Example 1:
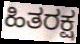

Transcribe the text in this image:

ಹಿತರಕ್ಷ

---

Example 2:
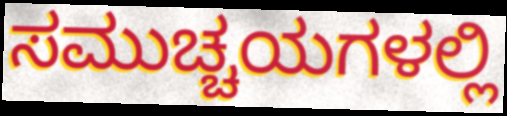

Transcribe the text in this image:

ಸಮುಚ್ಚಯಗಳಲ್ಲಿ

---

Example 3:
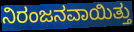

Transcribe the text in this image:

ನಿರಂಜನವಾಯಿತ್ತು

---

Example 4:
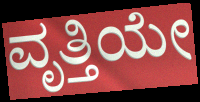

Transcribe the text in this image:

ವೃತ್ತಿಯೇ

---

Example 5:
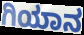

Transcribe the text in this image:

ಗಿಯಾನ